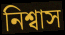
নিশ্বাস